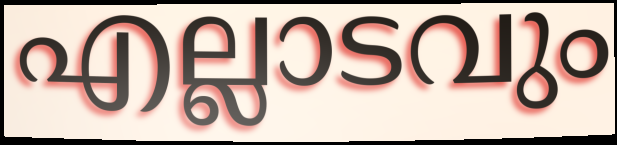
എല്ലാടവും